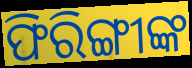
ଫିରିଙ୍ଗୀଙ୍କ